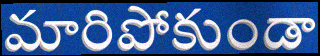
మారిపోకుండా